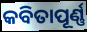
କବିତାପୂର୍ଣ୍ଣ